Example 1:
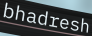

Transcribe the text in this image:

bhadresh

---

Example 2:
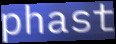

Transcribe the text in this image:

phast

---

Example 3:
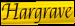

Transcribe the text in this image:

Hargrave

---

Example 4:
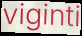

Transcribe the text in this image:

viginti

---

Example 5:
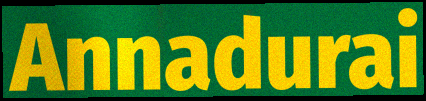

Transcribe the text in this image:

Annadurai